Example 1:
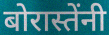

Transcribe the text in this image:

बोरास्तेंनी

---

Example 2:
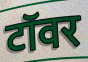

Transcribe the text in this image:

टॉवर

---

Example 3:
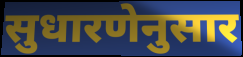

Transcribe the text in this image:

सुधारणेनुसार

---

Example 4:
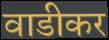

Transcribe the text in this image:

वाडीकर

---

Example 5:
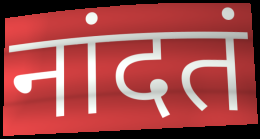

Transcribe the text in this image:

नांदतं